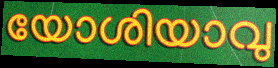
യോശിയാവു